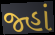
જ્હાં